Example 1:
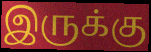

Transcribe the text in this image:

இருக்கு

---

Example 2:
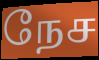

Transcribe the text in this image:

நேச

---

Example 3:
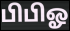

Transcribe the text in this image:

பிபிஓ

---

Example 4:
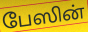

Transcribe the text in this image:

பேஸின்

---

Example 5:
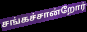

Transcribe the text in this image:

சங்கச்சான்றோர்